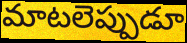
మాటలెప్పుడూ